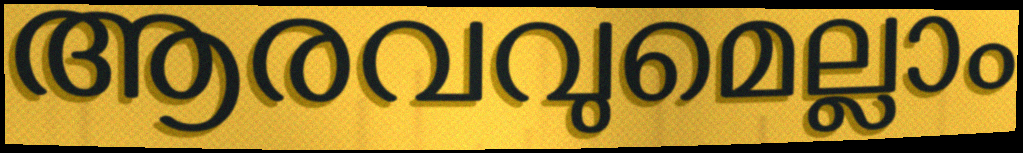
ആരവവുമെല്ലാം